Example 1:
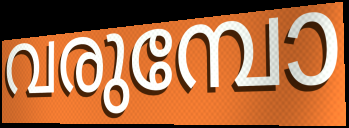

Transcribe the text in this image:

വരുമ്പോ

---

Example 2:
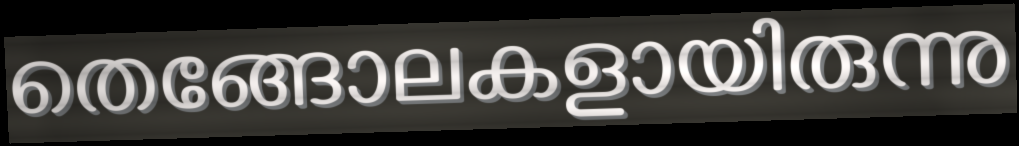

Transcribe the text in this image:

തെങ്ങോലകളായിരുന്നു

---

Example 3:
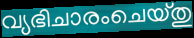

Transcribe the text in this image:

വ്യഭിചാരംചെയ്തു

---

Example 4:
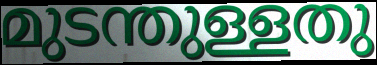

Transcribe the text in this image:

മുടന്തുള്ളതു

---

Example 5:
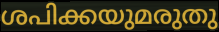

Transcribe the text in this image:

ശപിക്കയുമരുതു